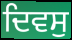
ਦਿਵਸੁ